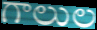
గాలుల